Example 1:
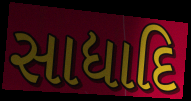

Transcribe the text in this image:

સાદ્યાદિ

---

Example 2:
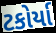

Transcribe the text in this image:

ટકોર્યા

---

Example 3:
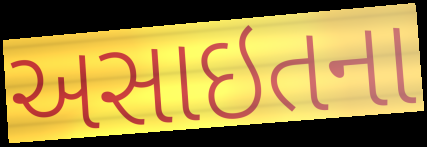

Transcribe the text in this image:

અસાઇતના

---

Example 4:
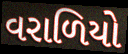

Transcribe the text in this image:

વરાળિયો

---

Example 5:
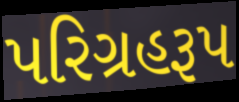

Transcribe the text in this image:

પરિગ્રહરૂપ